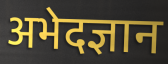
अभेदज्ञान